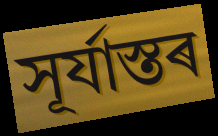
সূৰ্যাস্তৰ